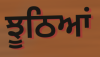
ਝੂਠਿਆਂ